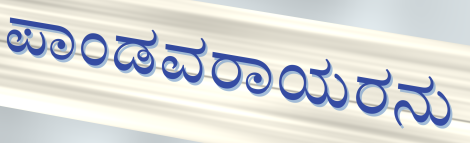
ಪಾಂಡವರಾಯರನು